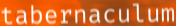
tabernaculum